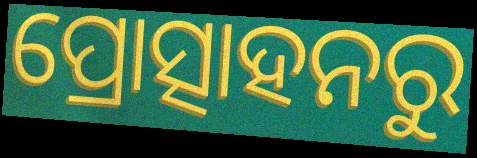
ପ୍ରୋତ୍ସାହନରୁ